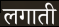
लगाती